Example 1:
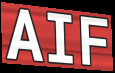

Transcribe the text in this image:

AIF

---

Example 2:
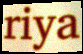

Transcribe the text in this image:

riya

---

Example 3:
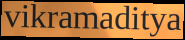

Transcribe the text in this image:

vikramaditya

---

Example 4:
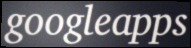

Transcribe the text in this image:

googleapps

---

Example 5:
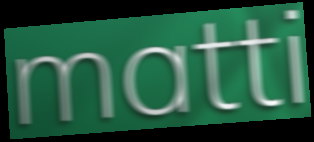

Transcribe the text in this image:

matti